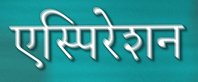
एस्पिरेशन